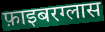
फ़ाइबरग्लास